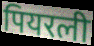
पियरली